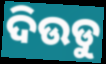
ଦିଉଡୁ